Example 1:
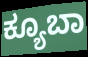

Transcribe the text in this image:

ಕ್ಯೂಬಾ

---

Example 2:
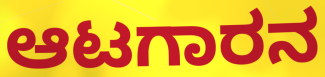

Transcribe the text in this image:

ಆಟಗಾರನ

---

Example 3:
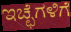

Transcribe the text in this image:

ಇಚ್ಛೆಗಳಿಗೆ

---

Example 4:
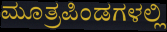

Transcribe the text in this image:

ಮೂತ್ರಪಿಂಡಗಳಲ್ಲಿ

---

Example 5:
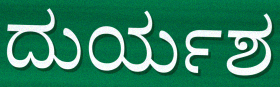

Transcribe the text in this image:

ದುರ್ಯಶ